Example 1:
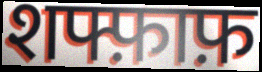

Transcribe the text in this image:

शफ्फ़ाफ़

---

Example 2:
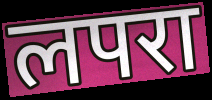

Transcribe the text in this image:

लपरा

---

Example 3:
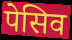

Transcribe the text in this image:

पेसिव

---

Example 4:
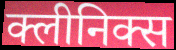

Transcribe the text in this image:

क्लीनिक्स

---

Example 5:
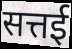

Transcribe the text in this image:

सत्तई